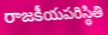
రాజకీయపరిస్థితి